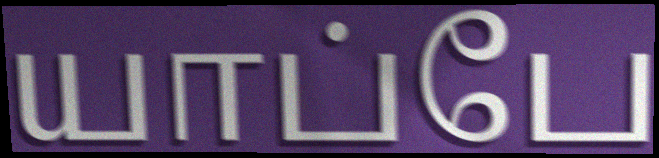
யாப்பே